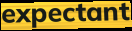
expectant